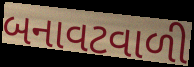
બનાવટવાળી